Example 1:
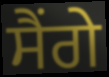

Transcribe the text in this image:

ਸੈਂਗੇ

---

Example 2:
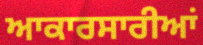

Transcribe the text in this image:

ਆਕਾਰਸਾਰੀਆਂ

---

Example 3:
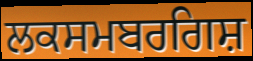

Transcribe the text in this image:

ਲਕਸਮਬਰਗਿਸ਼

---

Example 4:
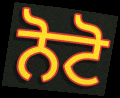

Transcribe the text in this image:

ਨੋਟੋ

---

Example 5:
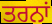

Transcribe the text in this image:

ਤਰਨਾਂ